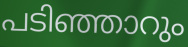
പടിഞ്ഞാറും